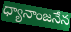
ధ్యానాంజనేన